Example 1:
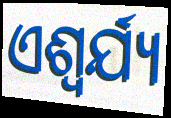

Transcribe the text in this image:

ଏଶ୍ଵର୍ଯ୍ୟ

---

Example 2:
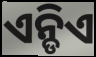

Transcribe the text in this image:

ଏନ୍ଡିଏ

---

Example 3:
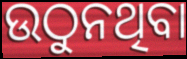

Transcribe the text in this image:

ଉଠୁନଥିବା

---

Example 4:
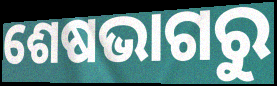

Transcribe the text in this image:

ଶେଷଭାଗରୁ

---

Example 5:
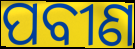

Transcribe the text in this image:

ପବୀଣ